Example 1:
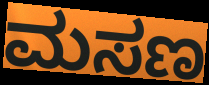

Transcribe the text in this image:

ಮಸಣ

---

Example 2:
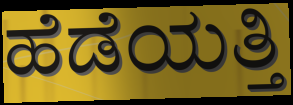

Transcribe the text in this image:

ಹೆಡೆಯತ್ತಿ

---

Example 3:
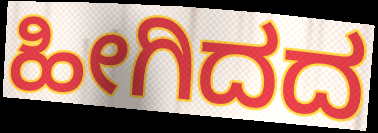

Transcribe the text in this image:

ಹೀಗಿದದ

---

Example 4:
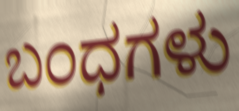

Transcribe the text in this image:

ಬಂಧಗಳು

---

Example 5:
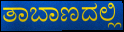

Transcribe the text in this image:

ತಾಬಾಣದಲ್ಲಿ